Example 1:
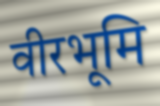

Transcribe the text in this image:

वीरभूमि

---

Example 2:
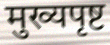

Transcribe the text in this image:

मुख्यपृष्ट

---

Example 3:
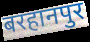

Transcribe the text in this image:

बरहानपुर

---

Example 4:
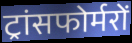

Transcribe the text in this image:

ट्रांसफोर्मरों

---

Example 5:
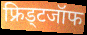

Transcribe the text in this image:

फ्रिड्टजॉफ